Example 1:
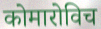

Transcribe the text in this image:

कोमारोविच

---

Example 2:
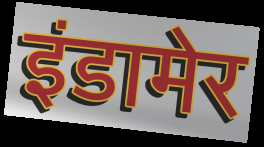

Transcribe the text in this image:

इंडामेर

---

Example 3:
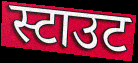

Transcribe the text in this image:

स्टाउट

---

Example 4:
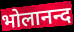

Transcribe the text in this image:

भोलानन्द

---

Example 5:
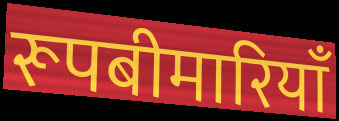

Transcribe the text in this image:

रूपबीमारियाँ